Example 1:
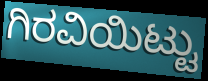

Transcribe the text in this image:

ಗಿರವಿಯಿಟ್ಟು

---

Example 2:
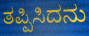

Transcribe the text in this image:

ತಪ್ಪಿಸಿದನು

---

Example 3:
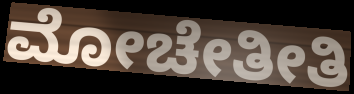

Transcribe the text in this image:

ಮೋಚೇತೀತಿ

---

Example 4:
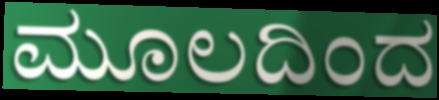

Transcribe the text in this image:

ಮೂಲದಿಂದ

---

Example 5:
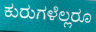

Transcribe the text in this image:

ಕುರುಗಳೆಲ್ಲರೂ